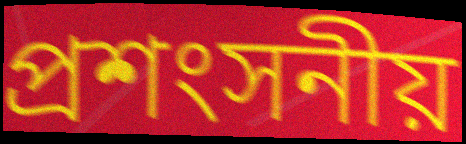
প্ৰশংসনীয়